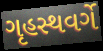
ગૃહસ્થવર્ગે